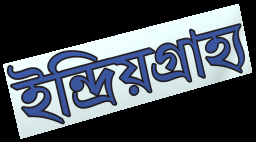
ইন্দ্রিয়গ্রাহ্য